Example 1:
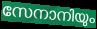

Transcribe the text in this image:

സേനാനിയും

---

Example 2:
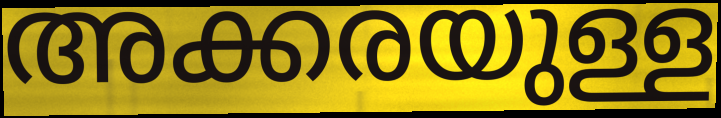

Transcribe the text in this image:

അക്കരയുള്ള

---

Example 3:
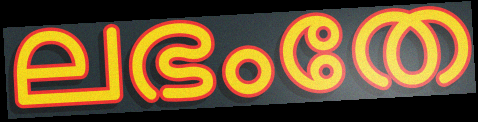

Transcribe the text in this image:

ലഭംതേ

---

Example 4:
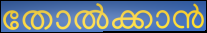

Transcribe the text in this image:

തോൽക്കാൻ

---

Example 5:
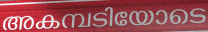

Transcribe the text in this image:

അകമ്പടിയോടെ